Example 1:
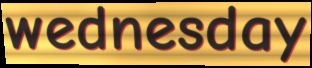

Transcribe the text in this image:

wednesday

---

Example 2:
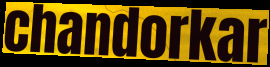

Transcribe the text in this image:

chandorkar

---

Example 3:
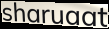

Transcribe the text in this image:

sharuaat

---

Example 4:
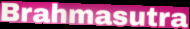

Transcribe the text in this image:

Brahmasutra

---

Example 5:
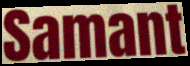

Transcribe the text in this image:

Samant